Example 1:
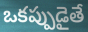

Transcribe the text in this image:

ఒకప్పుడైతే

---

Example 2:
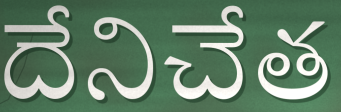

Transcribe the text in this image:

దేనిచేత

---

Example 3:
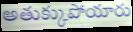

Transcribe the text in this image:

అతుక్కుపోయారు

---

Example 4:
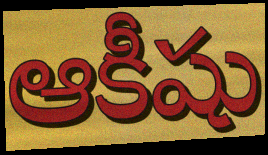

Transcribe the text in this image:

ఆకీషు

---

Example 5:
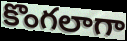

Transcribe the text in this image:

కొంగలాగా